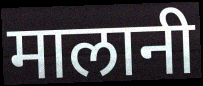
मालानी